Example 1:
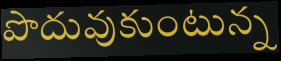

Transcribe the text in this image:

పొదువుకుంటున్న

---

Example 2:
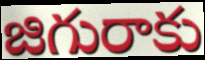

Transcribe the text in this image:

జిగురాకు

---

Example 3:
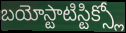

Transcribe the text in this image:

బయోస్టాటిస్టిక్స్లో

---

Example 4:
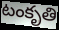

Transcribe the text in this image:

టంకృతి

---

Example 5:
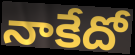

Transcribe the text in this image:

నాకేదో